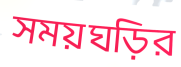
সময়ঘড়ির